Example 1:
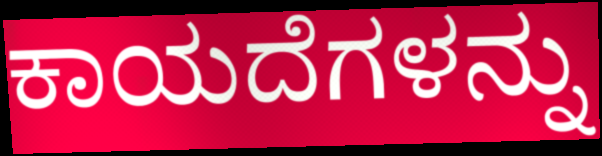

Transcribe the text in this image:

ಕಾಯದೆಗಳನ್ನು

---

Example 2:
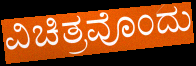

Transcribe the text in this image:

ವಿಚಿತ್ರವೊಂದು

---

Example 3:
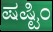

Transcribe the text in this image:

ಷಷ್ಟಿಂ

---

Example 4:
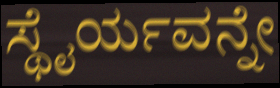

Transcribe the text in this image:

ಸ್ಥೈರ್ಯವನ್ನೇ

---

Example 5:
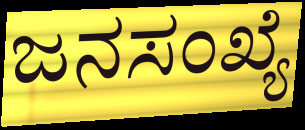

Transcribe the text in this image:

ಜನಸಂಖ್ಯೆ